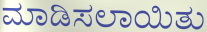
ಮಾಡಿಸಲಾಯಿತು